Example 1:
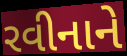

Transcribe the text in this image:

રવીનાને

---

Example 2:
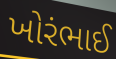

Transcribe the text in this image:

ખોરંભાઈ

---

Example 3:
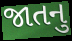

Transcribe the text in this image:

જાતનુ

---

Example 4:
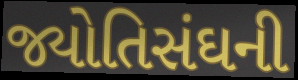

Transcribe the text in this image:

જ્યોતિસંઘની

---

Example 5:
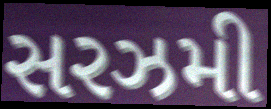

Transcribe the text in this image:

સરઝમી